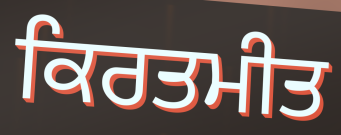
ਕਿਰਤਮੀਤ